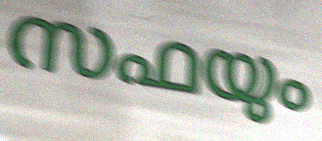
സഫയും